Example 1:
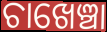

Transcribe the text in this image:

ଚାଖେଞ୍ଚା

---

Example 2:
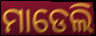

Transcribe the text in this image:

ମାଡେଲି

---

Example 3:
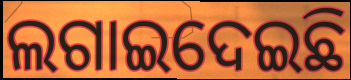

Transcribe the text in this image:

ଲଗାଇଦେଇଛି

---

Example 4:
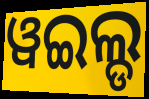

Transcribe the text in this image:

ୱଇଲ୍ଡ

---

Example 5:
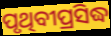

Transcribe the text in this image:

ପୃଥିବୀପ୍ରସିଦ୍ଧ